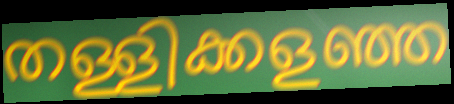
തള്ളിക്കളഞ്ഞ